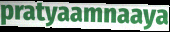
pratyaamnaaya